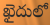
ఖైదులో